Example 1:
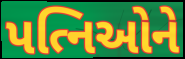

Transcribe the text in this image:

પત્નિઓને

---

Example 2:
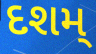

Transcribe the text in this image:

દશમ્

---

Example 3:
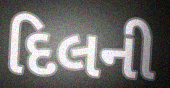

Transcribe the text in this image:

દિલની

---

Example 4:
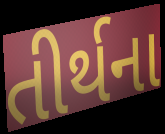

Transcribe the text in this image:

તીર્થના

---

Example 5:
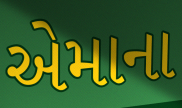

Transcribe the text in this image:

એમાના